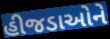
હીજડાઓને